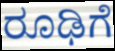
ರೂಢಿಗೆ